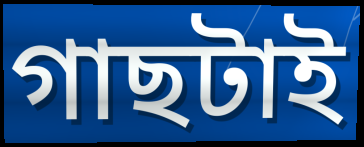
গাছটাই